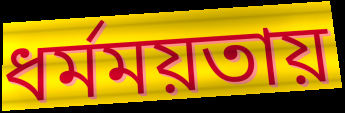
ধর্মময়তায়